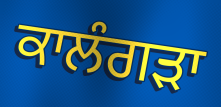
ਕਾਲੰਗੜਾ